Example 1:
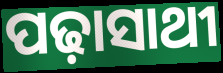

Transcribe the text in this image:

ପଢ଼ାସାଥୀ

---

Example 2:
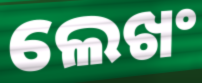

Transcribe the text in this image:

ଲେଖଂ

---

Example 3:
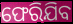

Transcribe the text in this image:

ଫେରିଯିବ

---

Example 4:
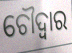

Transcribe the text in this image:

ଚୌଦ୍ବାର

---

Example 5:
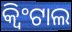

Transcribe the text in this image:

କ୍ୱିଂଟାଲ